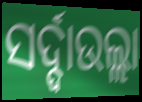
ସର୍ଦ୍ଦାଉଲ୍ଲା